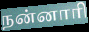
நன்னாரி